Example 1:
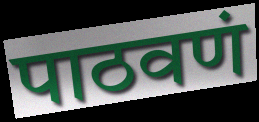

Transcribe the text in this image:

पाठवणं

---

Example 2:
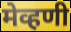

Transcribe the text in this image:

मेव्हणी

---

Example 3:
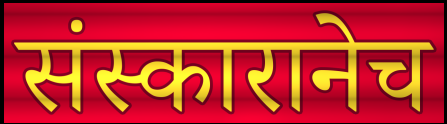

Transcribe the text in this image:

संस्कारानेच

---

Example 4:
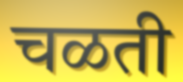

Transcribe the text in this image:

चळती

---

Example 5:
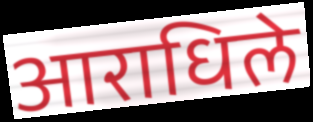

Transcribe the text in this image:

आराधिले